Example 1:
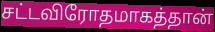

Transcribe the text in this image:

சட்டவிரோதமாகத்தான்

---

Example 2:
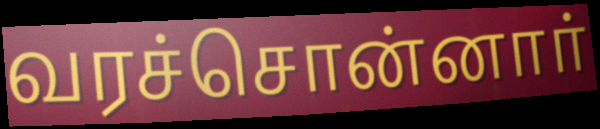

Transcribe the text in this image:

வரச்சொன்னார்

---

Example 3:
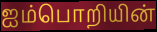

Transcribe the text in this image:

ஐம்பொறியின்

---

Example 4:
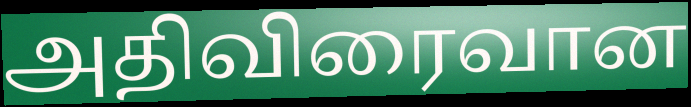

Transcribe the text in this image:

அதிவிரைவான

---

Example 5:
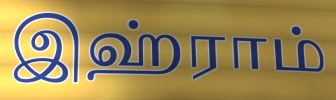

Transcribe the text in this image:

இஹ்ராம்